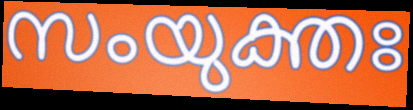
സംയുക്തഃ